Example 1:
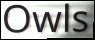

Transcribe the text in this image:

Owls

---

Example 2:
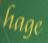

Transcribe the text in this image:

hage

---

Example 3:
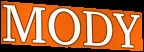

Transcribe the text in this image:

MODY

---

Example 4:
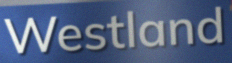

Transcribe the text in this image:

Westland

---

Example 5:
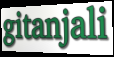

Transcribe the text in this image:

gitanjali